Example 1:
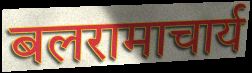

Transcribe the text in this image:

बलरामाचार्य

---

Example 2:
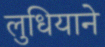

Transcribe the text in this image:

लुधियाने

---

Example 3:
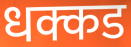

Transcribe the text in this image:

धक्कड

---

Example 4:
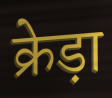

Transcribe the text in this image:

क्रेड़ा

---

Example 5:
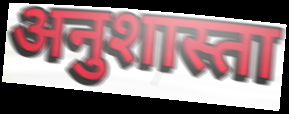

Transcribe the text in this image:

अनुशास्ता